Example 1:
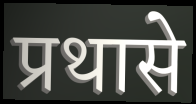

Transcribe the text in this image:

प्रथासे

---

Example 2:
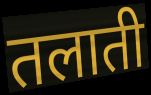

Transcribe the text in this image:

तलाती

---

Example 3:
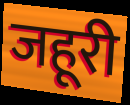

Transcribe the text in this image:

जहूरी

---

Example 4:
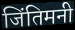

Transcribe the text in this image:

जिंतिमनी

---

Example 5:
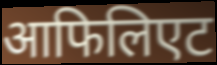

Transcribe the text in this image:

आफिलिएट